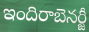
ఇందిరాబెనర్జీ